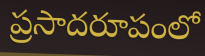
ప్రసాదరూపంలో